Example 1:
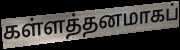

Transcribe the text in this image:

கள்ளத்தனமாகப்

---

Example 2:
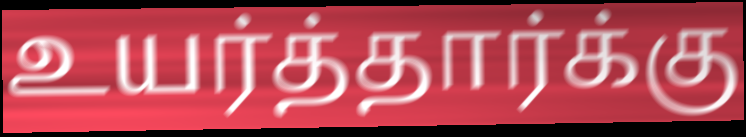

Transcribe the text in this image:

உயர்த்தார்க்கு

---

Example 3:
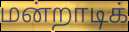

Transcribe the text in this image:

மன்றாடிக்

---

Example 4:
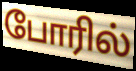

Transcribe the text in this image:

போரில்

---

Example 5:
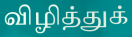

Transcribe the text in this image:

விழித்துக்